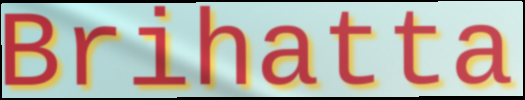
Brihatta